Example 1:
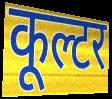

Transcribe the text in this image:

कूल्टर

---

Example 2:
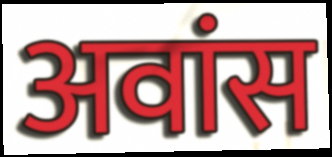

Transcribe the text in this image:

अवांस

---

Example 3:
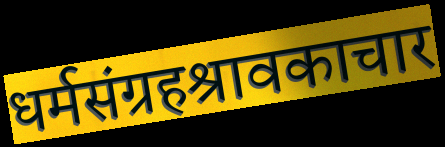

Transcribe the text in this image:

धर्मसंग्रहश्रावकाचार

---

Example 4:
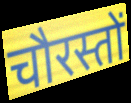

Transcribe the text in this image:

चौरस्तों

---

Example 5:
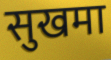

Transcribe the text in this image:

सुखमा